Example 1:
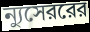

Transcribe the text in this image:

ন্যুসেররের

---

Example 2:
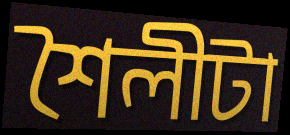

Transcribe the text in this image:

শৈলীটা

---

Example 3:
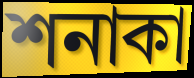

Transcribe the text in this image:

শনাকা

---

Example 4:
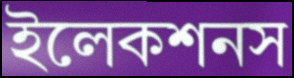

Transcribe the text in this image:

ইলেকশনস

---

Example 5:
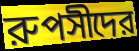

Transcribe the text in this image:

রুপসীদের